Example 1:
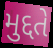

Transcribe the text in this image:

મુદ્દતે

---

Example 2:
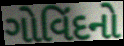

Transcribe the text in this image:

ગોવિંદનો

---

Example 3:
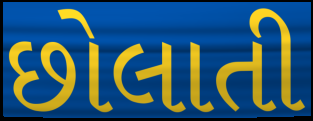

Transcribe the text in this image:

છોલાતી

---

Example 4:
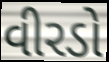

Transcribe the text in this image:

વીરડો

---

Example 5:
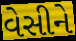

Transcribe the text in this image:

વેસીને